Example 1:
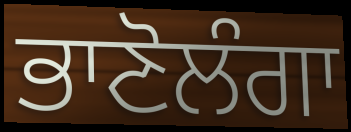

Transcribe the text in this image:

ਭਾਣੋਲੰਗਾ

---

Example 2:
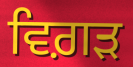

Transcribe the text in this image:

ਵਿਗ਼ੜ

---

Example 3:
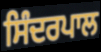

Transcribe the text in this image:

ਸਿੰਦਰਪਾਲ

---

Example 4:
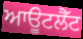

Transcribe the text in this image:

ਆਊਟਲੈੱਟ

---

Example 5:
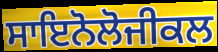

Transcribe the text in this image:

ਸਾਇਨੋਲੋਜੀਕਲ